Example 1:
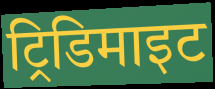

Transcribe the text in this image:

ट्रिडिमाइट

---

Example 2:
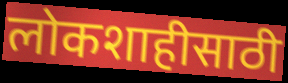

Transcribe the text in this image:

लोकशाहीसाठी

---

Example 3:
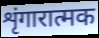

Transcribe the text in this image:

शृंगारात्मक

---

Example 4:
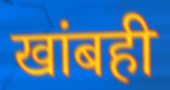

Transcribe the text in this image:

खांबही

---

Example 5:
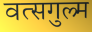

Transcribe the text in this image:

वत्सगुल्म